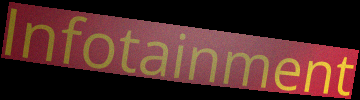
Infotainment